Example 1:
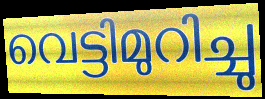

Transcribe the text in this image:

വെട്ടിമുറിച്ചു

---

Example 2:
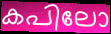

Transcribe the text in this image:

കപിലോ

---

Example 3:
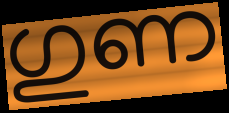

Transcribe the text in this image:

ഗുണ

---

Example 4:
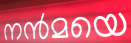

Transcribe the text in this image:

നൻമയെ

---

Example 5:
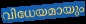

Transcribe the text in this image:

വിധേയമായും